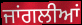
ਜਾਂਗਲੀਆਂ